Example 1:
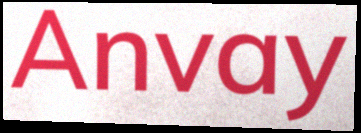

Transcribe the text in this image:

Anvay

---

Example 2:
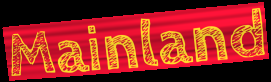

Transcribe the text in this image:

Mainland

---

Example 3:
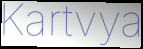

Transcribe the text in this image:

Kartvya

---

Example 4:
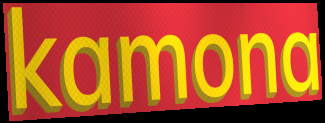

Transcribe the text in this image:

kamona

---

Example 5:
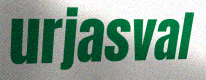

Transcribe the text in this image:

urjasval